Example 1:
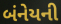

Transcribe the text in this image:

બંનેયની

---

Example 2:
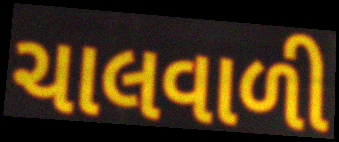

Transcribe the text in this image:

ચાલવાળી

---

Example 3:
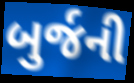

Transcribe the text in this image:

બુર્જની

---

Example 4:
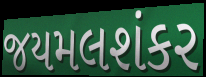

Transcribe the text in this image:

જયમલશંકર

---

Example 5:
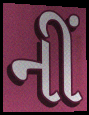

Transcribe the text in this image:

નીં